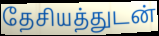
தேசியத்துடன்